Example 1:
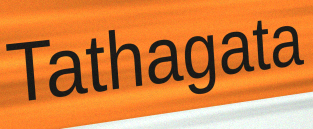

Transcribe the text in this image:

Tathagata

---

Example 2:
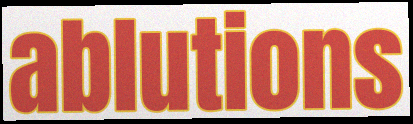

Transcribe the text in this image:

ablutions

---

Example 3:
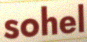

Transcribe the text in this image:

sohel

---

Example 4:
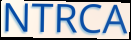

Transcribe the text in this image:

NTRCA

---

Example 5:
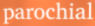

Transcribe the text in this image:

parochial